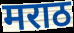
मराठ